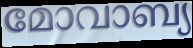
മോവാബ്യ